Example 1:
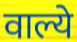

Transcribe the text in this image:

वाल्ये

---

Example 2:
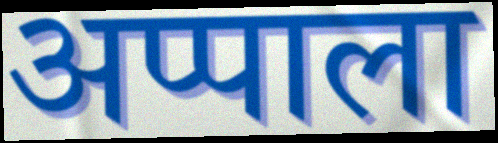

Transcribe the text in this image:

अप्पाला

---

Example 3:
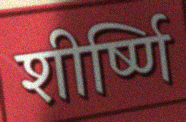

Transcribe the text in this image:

शीर्ष्णि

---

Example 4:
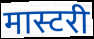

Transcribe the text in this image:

मास्टरी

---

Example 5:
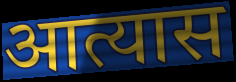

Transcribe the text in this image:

आत्यास